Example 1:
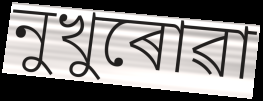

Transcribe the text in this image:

নুখুৰোৱা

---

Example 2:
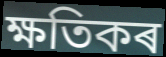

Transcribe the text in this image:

ক্ষতিকৰ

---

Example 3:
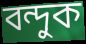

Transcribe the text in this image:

বন্দুক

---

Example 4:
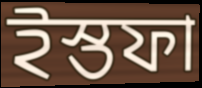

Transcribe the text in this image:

ইস্তফা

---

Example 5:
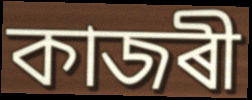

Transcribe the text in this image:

কাজৰী